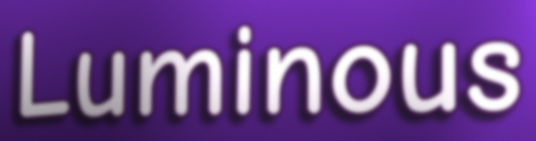
Luminous